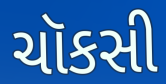
ચૉકસી